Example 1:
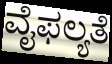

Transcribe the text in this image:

ವೈಫಲ್ಯತೆ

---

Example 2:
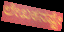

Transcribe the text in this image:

ಲೇಖಕನಷ್ಟೇ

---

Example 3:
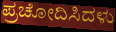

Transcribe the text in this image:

ಪ್ರಚೋದಿಸಿದಳು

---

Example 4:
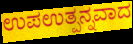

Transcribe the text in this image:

ಉಪಉತ್ಪನ್ನವಾದ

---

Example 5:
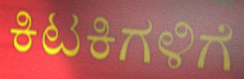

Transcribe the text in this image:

ಕಿಟಕಿಗಳಿಗೆ